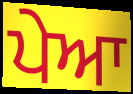
ਪੇਆ